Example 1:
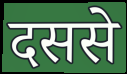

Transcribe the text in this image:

दससे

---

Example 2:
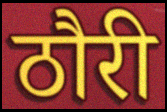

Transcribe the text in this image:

ठौरी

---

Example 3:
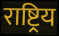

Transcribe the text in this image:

राष्ट्रिय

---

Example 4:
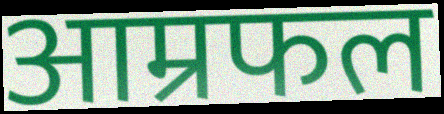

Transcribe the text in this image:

आम्रफल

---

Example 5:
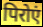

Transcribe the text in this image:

पिरोएं